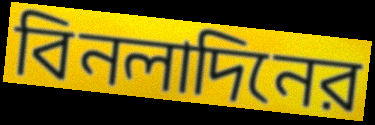
বিনলাদিনের